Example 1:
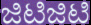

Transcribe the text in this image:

ಜಿಟಿಜಿಟಿ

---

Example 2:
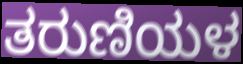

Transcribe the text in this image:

ತರುಣಿಯಳ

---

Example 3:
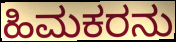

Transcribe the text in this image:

ಹಿಮಕರನು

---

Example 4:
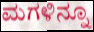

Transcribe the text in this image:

ಮಗಳಿನ್ನೂ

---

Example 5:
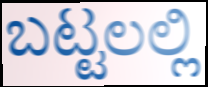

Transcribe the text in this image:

ಬಟ್ಟಲಲ್ಲಿ